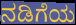
ನಡಿಗೆಯ